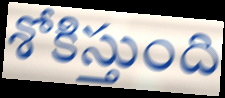
శోకిస్తుంది